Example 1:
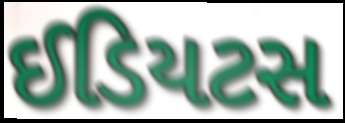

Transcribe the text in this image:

ઈડિયટસ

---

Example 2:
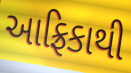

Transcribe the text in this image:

આફ્રિકાથી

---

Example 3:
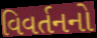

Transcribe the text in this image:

વિવર્તનનો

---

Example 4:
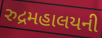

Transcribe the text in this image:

રુદ્રમહાલયની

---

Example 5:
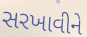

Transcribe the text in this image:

સરખાવીને